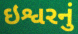
ઇશ્વરનું